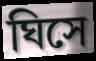
ঘিসে